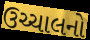
ઉચ્ચાલનો